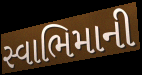
સ્વાભિમાની